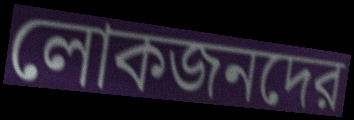
লোকজনদের